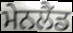
ਮੇਨਲੈਂਡ